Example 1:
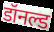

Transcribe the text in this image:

डॉनल्ड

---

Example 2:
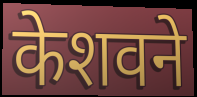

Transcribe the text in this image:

केशवने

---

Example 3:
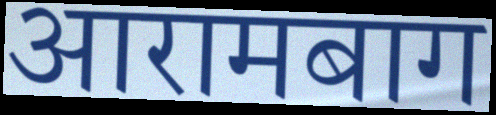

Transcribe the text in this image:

आरामबाग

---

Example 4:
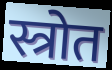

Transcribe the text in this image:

स्त्रोत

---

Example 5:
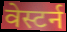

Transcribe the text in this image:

वेस्टर्न